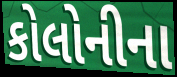
કોલોનીના